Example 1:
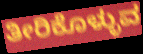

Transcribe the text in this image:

ತೀರಿಕೊಳ್ಳುವ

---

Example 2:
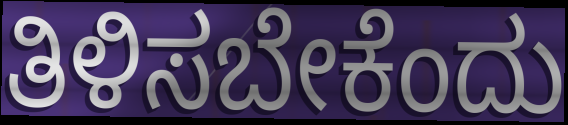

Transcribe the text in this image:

ತಿಳಿಸಬೇಕೆಂದು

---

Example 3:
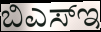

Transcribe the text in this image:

ಬಿಎಸ್ಇ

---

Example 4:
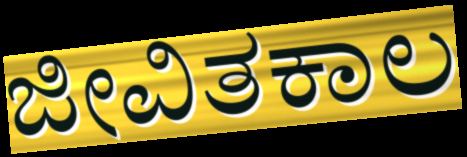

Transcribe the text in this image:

ಜೀವಿತಕಾಲ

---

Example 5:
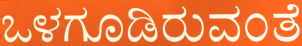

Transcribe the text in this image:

ಒಳಗೂಡಿರುವಂತೆ